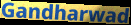
Gandharwad